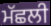
ਮੱਛਲੀ